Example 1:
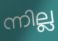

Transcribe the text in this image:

ന്നില്ല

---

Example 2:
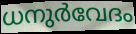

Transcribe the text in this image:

ധനുർവേദം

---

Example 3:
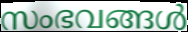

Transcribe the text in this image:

സംഭവങ്ങൾ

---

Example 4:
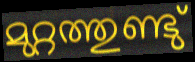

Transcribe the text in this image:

മുറ്റത്തുണ്ടു്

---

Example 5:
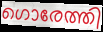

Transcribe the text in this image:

ഗൊരേത്തി